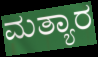
ಮತ್ಯಾರ